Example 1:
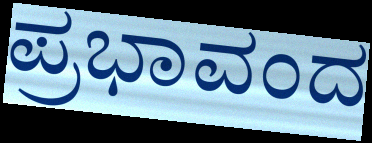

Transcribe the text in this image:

ಪ್ರಭಾವಂದ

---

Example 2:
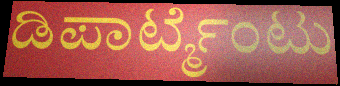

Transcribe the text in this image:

ಡಿಪಾರ್ಟ್ಮೆಂಟು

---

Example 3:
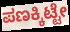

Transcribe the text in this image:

ಪಣಕ್ಕಿಟ್ಟೇ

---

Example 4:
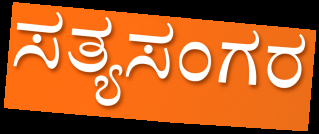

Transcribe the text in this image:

ಸತ್ಯಸಂಗರ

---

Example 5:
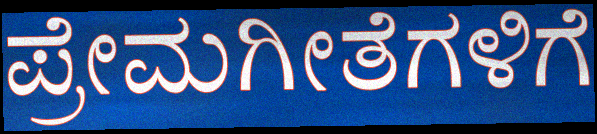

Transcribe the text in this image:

ಪ್ರೇಮಗೀತೆಗಳಿಗೆ